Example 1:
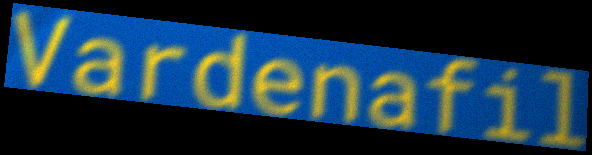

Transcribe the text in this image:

Vardenafil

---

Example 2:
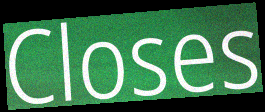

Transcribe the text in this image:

Closes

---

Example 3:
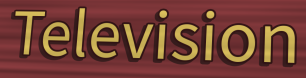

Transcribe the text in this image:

Television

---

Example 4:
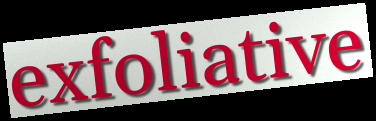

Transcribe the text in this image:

exfoliative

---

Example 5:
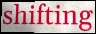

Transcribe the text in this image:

shifting